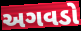
અગવડો